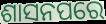
ଶାସନପରେ